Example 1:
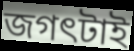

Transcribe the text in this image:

জগৎটাই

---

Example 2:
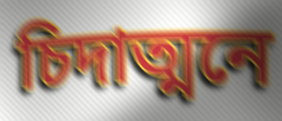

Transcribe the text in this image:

চিদাত্মনে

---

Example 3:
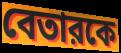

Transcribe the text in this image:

বেতারকে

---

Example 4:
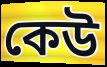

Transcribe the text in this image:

কেউ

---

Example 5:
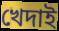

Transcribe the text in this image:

খেদাই